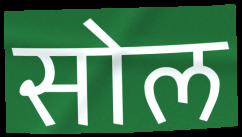
सोल